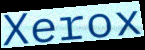
Xerox